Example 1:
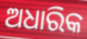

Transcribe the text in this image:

ଅଧାରିକ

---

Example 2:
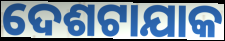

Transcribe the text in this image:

ଦେଶଟାଯାକ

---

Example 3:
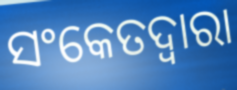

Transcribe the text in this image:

ସଂକେତଦ୍ଵାରା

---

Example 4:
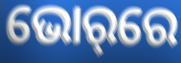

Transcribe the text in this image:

ଭୋର୍‌ରେ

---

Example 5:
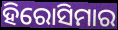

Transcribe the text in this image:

ହିରୋସିମାର